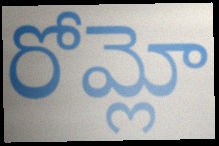
రోమ్లో